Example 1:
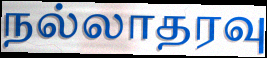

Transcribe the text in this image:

நல்லாதரவு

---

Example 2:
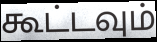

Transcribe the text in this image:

கூட்டவும்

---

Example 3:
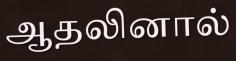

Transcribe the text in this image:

ஆதலினால்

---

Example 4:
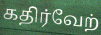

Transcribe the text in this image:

கதிர்வேற்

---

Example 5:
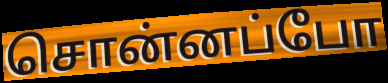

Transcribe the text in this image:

சொன்னப்போ